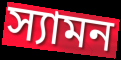
স্যামন